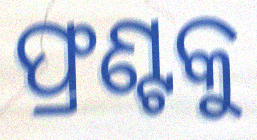
ଫ୍ରଣ୍ଟକୁ